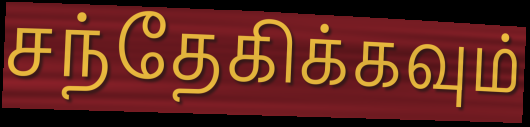
சந்தேகிக்கவும்